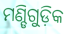
ମଣ୍ଡିଗୁଡ଼ିକ